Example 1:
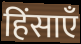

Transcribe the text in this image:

हिंसाएँ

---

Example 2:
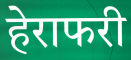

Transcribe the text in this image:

हेराफरी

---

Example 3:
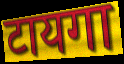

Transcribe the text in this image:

टायगा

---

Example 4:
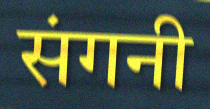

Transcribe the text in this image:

संगनी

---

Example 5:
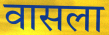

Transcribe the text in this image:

वासला